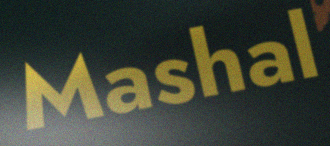
Mashal